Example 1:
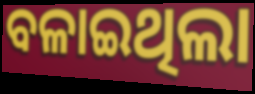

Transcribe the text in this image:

ବଳାଇଥିଲା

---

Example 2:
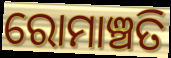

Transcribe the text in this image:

ରୋମାଞ୍ଚତି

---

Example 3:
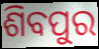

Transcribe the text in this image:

ଶିବପୁର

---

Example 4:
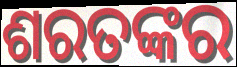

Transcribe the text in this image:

ଶରତଙ୍କର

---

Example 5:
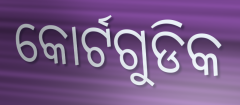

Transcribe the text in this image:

କୋର୍ଟଗୁଡିକ